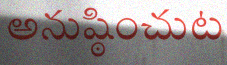
అనుష్ఠించుట